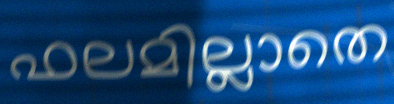
ഫലമില്ലാതെ